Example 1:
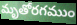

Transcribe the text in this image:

మృతోరగముం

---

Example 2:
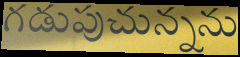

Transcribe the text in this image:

గడుపుచున్నను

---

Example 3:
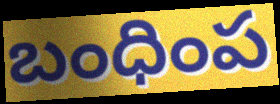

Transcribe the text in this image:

బంధింప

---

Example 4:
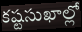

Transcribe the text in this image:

కష్టసుఖాల్లో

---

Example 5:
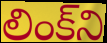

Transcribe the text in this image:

లింక్‌ని